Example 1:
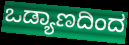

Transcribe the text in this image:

ಒಡ್ಯಾಣದಿಂದ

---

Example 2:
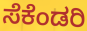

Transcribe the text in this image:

ಸೆಕೆಂಡರಿ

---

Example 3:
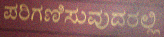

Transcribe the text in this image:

ಪರಿಗಣಿಸುವುದರಲ್ಲಿ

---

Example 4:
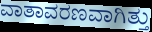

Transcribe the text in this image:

ವಾತಾವರಣವಾಗಿತ್ತು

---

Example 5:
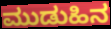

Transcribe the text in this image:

ಮುಡುಹಿನ